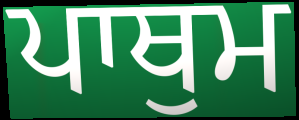
ਪਾਥੁਮ